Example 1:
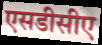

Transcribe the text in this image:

एसडीसीए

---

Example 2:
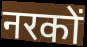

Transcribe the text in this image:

नरकों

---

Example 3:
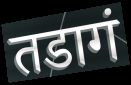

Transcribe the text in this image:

तडागं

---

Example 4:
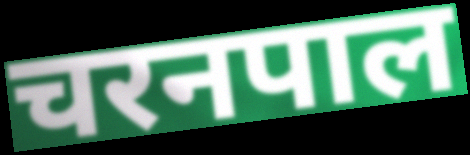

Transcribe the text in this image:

चरनपाल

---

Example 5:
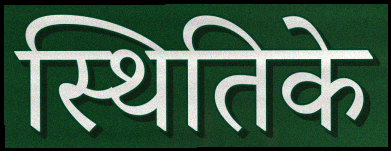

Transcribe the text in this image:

स्थितिके